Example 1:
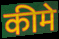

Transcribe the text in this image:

कीमे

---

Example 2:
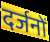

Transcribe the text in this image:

दर्जनों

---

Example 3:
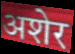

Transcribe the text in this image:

अशेर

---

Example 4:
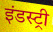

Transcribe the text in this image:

इंडस्ट्री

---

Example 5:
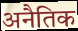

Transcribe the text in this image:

अनैतिक